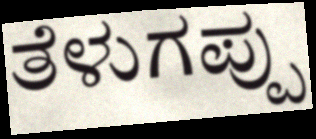
ತೆಳುಗಪ್ಪು